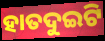
ହାତଦୁଇଟି